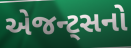
એજન્ટ્સનો